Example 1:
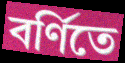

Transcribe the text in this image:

বর্ণিতে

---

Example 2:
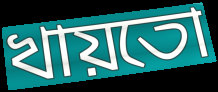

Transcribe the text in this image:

খায়তো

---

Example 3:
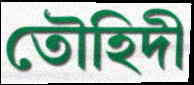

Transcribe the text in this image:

তৌহিদী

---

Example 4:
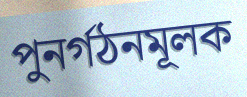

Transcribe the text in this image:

পুনর্গঠনমূলক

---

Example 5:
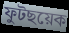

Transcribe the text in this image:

ফুটছয়েক